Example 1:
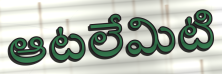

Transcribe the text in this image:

ఆటలేమిటి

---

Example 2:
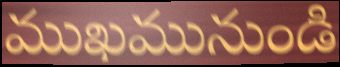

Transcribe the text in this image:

ముఖమునుండి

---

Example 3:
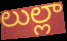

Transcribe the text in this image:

లుల్లా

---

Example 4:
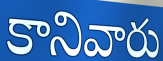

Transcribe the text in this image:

కానివారు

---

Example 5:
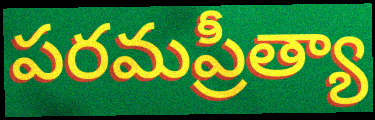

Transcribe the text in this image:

పరమప్రీత్యా